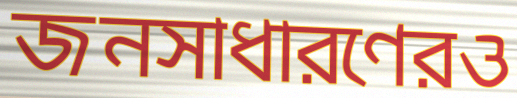
জনসাধারণেরও